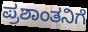
ಪ್ರಶಾಂತನಿಗೆ